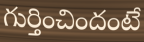
గుర్తించిందంటే